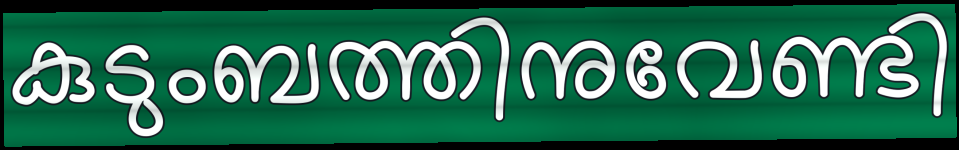
കുടുംബത്തിനുവേണ്ടി